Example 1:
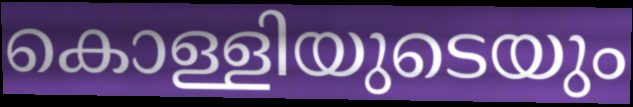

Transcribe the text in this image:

കൊള്ളിയുടെയും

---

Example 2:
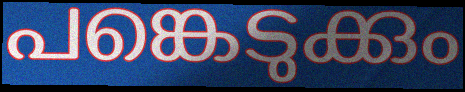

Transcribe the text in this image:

പങ്കെടുക്കും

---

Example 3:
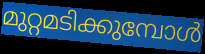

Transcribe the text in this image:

മുറ്റമടിക്കുമ്പോൾ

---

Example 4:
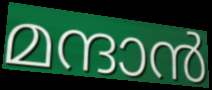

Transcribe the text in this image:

മന്ദാൻ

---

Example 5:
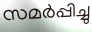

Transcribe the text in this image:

സമർപ്പിച്ചു